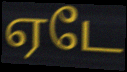
ஏடே